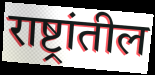
राष्ट्रांतील